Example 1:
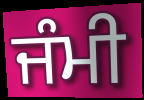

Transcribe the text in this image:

ਜੰਮੀ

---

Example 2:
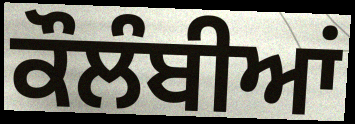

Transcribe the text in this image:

ਕੌਲੰਬੀਆਂ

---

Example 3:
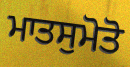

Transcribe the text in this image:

ਮਾਤਸੁਮੋਤੋ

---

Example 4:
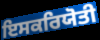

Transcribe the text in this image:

ਇਸਕਰਿਯੋਤੀ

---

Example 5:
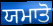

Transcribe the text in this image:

ਯਮਾਤੋ